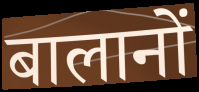
बालानों